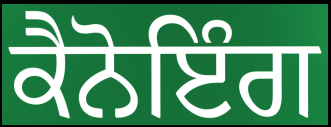
ਕੈਨੋਇੰਗ